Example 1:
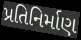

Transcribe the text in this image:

પ્રતિનિર્માણ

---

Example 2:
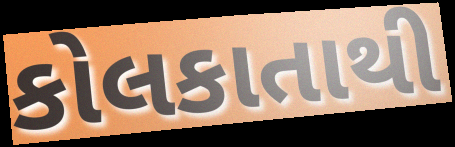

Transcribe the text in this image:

કોલકાતાથી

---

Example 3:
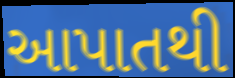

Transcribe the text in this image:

આપાતથી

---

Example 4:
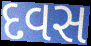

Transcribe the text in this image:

દવસ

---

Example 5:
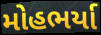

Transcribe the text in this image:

મોહભર્યા